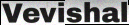
Vevishal